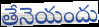
తేనెయందు